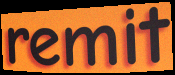
remit